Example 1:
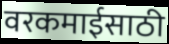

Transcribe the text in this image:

वरकमाईसाठी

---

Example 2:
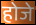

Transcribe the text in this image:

होजे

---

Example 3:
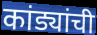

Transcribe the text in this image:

कांड्यांची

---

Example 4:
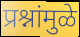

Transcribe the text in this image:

प्रश्नांमुळे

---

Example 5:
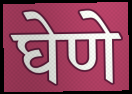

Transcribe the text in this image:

घेणे